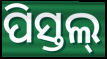
ପିସ୍ତଲ୍